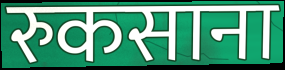
रुकसाना